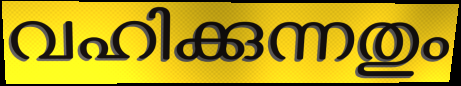
വഹിക്കുന്നതും